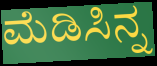
ಮೆಡಿಸಿನ್ನ